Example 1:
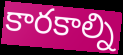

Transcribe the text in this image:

కారకాల్ని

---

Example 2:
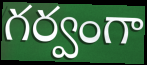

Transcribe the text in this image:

గర్వంగా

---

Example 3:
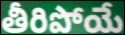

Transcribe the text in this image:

తీరిపోయే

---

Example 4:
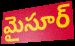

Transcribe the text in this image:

మైసూర్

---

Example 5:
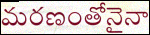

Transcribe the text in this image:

మరణంతోనైనా